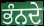
ਭੰਨਦੇ